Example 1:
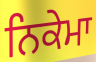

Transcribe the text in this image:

ਨਿਕੇਮਾ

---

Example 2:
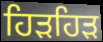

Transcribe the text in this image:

ਹਿੜਹਿੜ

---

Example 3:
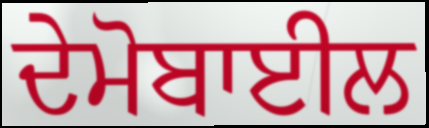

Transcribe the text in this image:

ਦੇਮੋਬਾਈਲ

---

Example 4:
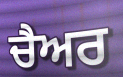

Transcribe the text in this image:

ਚੈਅਰ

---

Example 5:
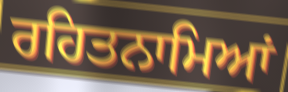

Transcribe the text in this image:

ਰਹਿਤਨਾਮਿਆਂ